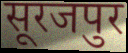
सूरजपुर